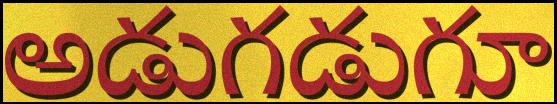
అడుగడుగూ